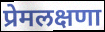
प्रेमलक्षणा